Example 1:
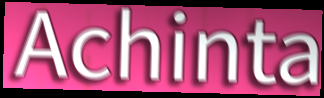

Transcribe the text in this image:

Achinta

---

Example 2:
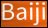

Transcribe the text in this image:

Baiji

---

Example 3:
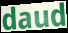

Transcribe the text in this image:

daud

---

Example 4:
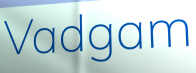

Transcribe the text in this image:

Vadgam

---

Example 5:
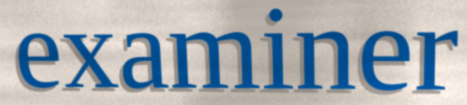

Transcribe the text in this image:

examiner